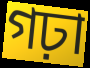
গঢ়া